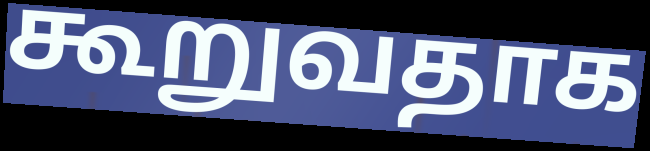
கூறுவதாக